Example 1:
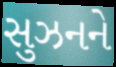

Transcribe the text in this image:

સુઝનને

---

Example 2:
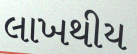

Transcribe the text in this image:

લાખથીય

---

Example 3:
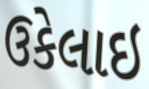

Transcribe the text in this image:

ઉકેલાઇ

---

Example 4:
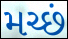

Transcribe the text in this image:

મચ્છં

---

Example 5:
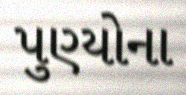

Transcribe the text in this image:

પુણ્યોના